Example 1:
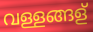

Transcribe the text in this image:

വള്ളങ്ങള്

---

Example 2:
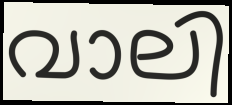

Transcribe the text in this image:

വാലി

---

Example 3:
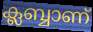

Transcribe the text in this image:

ക്ലബ്ബാണ്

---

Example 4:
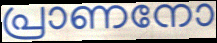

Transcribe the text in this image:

പ്രാണനോ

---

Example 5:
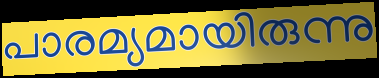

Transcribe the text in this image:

പാരമ്യമായിരുന്നു